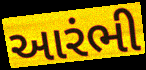
આરંભી